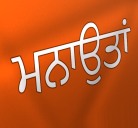
ਮਨਾਉਤਾਂ